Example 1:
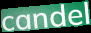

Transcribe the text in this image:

candel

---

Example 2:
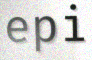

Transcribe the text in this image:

epi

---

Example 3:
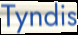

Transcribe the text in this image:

Tyndis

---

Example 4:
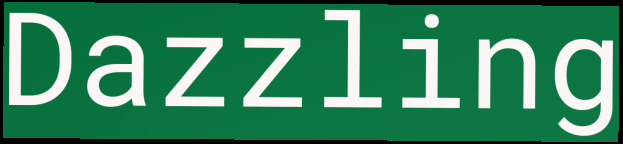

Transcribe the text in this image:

Dazzling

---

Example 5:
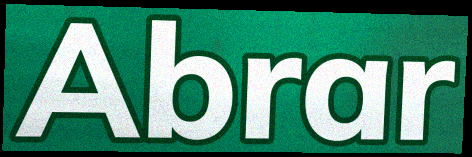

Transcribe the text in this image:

Abrar